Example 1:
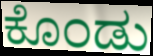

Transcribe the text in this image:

ಕೊಂಡು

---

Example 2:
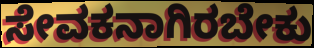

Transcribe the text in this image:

ಸೇವಕನಾಗಿರಬೇಕು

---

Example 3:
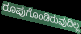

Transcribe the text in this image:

ರೂಪುಗೊಂಡಿರುವುದಿಲ್ಲ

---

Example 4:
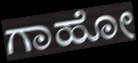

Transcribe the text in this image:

ಗಾಹೋ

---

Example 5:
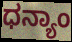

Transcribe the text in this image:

ಧನ್ಯಾಂ